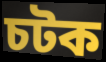
চটক